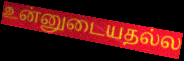
உன்னுடையதல்ல